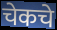
चेकचे